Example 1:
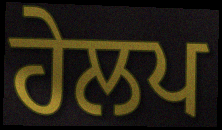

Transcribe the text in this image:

ਹੇਲਪ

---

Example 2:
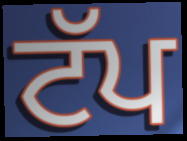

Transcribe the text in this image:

ਟੱਪ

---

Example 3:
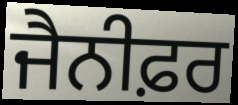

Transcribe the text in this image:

ਜੈਨੀਫ਼ਰ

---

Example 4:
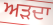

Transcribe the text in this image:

ਅੜਦਾ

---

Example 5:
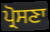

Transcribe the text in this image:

ਪ੍ਰੋਸਣਾ